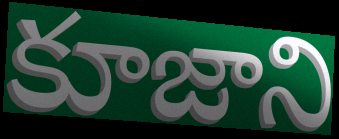
కూజాని